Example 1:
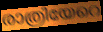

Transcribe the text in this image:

രാത്രിയേറെ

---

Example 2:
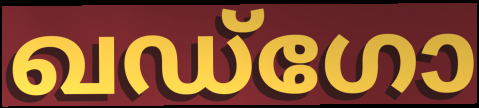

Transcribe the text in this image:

ഖഡ്ഗോ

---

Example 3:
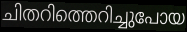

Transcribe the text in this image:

ചിതറിത്തെറിച്ചുപോയ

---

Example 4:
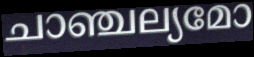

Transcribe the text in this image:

ചാഞ്ചല്യമോ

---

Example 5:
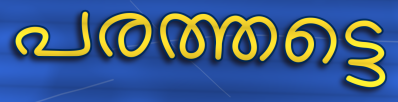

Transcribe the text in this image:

പരത്തട്ടെ